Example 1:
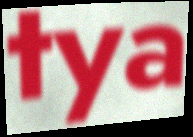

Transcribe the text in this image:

tya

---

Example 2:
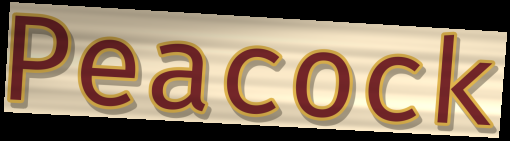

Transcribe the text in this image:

Peacock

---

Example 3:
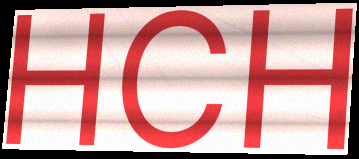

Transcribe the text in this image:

HCH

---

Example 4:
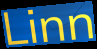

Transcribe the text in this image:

Linn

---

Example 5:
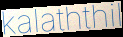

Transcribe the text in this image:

kalaththil